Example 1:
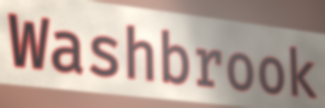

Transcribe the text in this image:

Washbrook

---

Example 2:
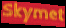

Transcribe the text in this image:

Skymet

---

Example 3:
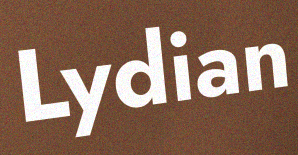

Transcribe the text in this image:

Lydian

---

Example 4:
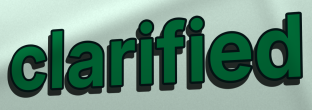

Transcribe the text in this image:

clarified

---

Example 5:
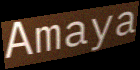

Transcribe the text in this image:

Amaya